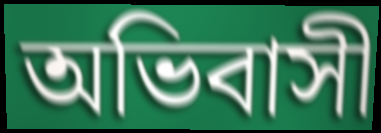
অভিবাসী